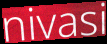
nivasi